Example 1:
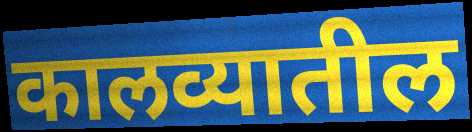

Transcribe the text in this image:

कालव्यातील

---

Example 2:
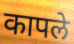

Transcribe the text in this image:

कापले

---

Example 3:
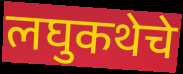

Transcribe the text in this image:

लघुकथेचे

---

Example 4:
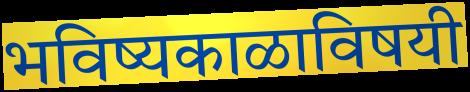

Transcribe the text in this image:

भविष्यकाळाविषयी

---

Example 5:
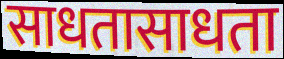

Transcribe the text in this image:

साधतासाधता